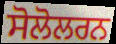
ਸੋਲੋਲਰਨ